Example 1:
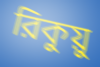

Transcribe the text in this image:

রিকুয়ু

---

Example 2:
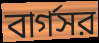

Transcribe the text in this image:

বার্গসর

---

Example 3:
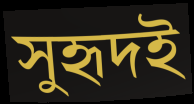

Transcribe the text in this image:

সুহৃদই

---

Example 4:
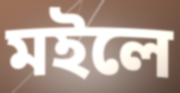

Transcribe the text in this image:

মইলে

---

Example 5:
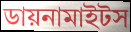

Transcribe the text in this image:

ডায়নামাইটস